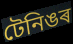
টেনিঙৰ